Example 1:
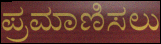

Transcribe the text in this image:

ಪ್ರಮಾಣಿಸಲು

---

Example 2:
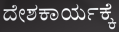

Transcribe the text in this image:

ದೇಶಕಾರ್ಯಕ್ಕೆ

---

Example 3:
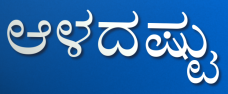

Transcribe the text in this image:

ಆಳದಷ್ಟು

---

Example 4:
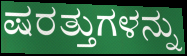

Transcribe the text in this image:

ಷರತ್ತುಗಳನ್ನು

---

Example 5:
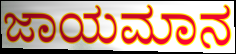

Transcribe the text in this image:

ಜಾಯಮಾನ